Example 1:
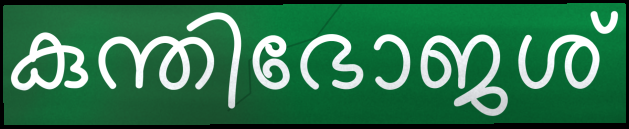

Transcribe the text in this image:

കുന്തിഭോജശ്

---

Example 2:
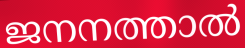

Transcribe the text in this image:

ജനനത്താൽ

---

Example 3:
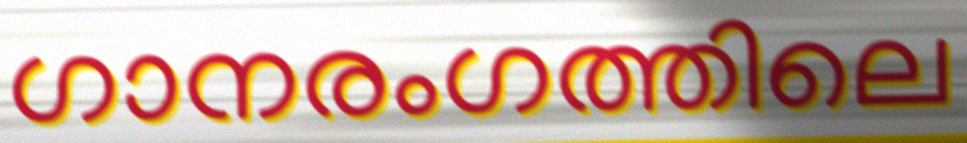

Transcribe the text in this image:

ഗാനരംഗത്തിലെ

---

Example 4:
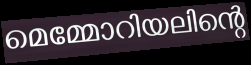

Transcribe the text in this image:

മെമ്മോറിയലിന്റെ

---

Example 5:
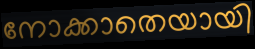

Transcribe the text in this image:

നോക്കാതെയായി